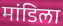
मांडिला